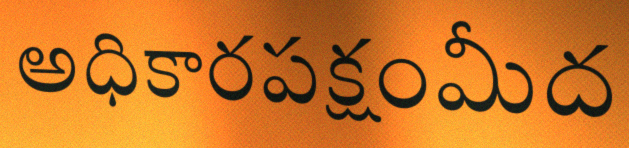
అధికారపక్షంమీద